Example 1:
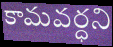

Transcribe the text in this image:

కామవర్ధని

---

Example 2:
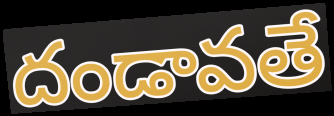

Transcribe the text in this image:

దండావతే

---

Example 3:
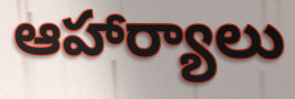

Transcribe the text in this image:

ఆహార్యాలు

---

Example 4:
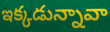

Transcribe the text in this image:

ఇక్కడున్నావా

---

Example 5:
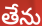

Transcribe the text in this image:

తేను